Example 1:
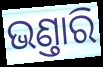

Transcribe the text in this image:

ଭଣ୍ତାରି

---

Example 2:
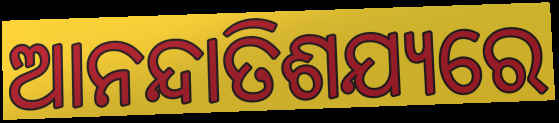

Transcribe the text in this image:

ଆନନ୍ଦାତିଶଯ୍ୟରେ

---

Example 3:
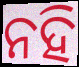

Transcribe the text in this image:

ନହି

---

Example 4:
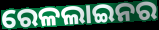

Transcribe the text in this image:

ରେଳଲାଇନର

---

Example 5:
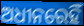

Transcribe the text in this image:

ଅଧୀନରେହିଁ